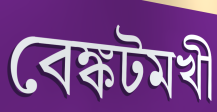
বেঙ্কটমখী